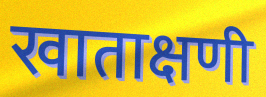
खाताक्षणी